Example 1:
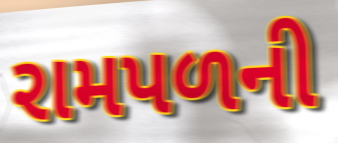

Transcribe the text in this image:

રામપળની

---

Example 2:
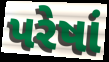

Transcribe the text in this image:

પરેષાં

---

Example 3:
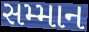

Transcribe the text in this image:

સમ્માન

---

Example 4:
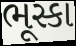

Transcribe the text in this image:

ભૂસ્કા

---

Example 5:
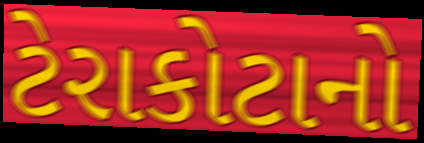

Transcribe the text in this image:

ટેરાકોટાનો